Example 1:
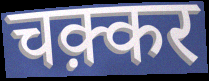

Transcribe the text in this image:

चक़्कर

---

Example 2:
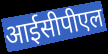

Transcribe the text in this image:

आईसीपीएल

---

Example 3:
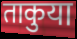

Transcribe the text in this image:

ताकुया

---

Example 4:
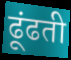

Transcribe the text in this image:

ढूंढती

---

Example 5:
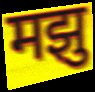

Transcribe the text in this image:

मझु